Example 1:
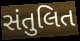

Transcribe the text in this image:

સંતુલિત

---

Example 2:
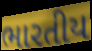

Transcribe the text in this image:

ભારતીય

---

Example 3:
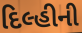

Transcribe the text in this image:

દિલ્હીની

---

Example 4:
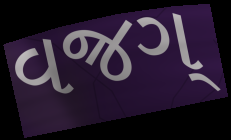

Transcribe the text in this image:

વજ્રગ્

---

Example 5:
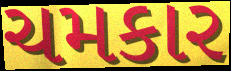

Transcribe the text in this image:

ચમકાર